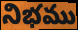
నిభము